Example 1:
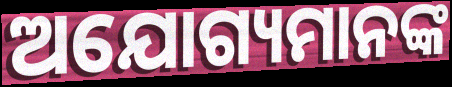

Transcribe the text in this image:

ଅଯୋଗ୍ୟମାନଙ୍କ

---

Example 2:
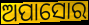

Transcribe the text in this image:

ଅପାସୋର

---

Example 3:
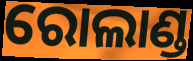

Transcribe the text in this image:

ରୋଲାଣ୍ଡ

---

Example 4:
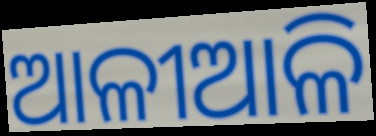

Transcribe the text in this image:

ଆଳୀଆଳି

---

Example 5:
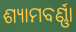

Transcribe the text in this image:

ଶ୍ୟାମବର୍ଣ୍ଣା